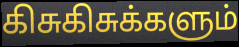
கிசுகிசுக்களும்